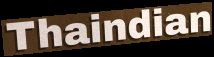
Thaindian